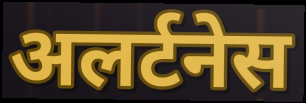
अलर्टनेस